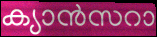
ക്യാൻസറാ